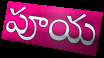
పూయ